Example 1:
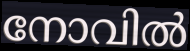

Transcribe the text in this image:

നോവിൽ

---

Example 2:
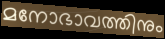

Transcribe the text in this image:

മനോഭാവത്തിനും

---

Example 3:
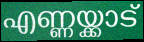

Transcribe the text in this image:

എണ്ണയ്ക്കാട്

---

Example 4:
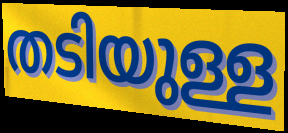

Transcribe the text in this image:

തടിയുള്ള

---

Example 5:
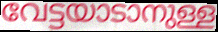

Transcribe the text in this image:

വേട്ടയാടാനുള്ള